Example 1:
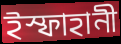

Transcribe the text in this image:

ইস্ফাহানী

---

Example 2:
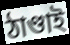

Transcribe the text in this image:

ঠাণ্ডাই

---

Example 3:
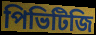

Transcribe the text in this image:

পিভিটিজি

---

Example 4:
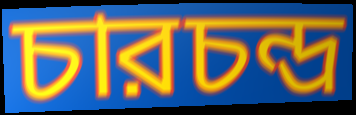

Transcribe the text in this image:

চারচন্দ্র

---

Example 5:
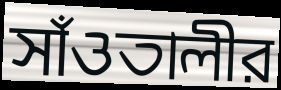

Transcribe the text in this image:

সাঁওতালীর